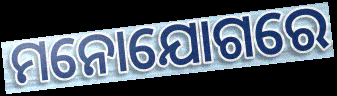
ମନୋଯୋଗରେ